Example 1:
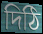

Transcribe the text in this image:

দিঠি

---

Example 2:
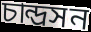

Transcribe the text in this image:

চান্দ্রসন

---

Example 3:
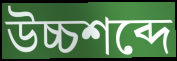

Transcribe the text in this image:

উচ্চশব্দে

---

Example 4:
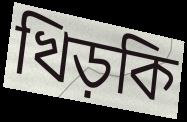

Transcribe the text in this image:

খিড়কি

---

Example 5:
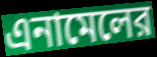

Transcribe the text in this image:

এনামেলের